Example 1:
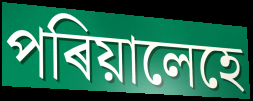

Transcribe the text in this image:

পৰিয়ালেহে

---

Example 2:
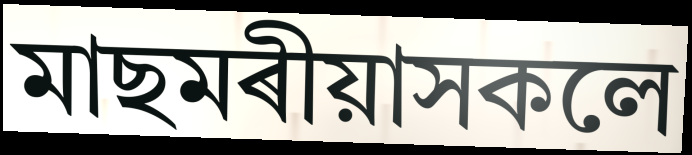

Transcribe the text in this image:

মাছমৰীয়াসকলে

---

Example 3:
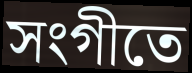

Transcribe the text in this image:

সংগীতে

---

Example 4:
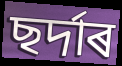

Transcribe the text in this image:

ছৰ্দাৰ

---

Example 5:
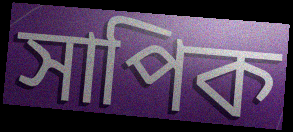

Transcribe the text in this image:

সাপিক